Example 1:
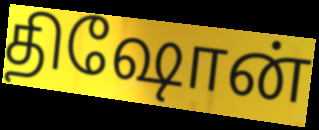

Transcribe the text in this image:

திஷோன்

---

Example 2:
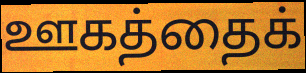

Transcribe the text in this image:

ஊகத்தைக்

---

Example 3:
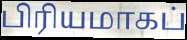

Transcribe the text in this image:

பிரியமாகப்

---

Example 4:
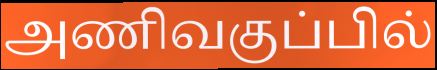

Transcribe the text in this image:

அணிவகுப்பில்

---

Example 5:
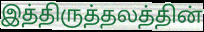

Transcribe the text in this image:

இத்திருத்தலத்தின்